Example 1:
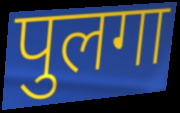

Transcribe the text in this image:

पुलगा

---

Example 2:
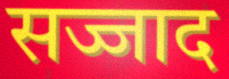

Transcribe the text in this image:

सज्‍जाद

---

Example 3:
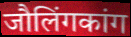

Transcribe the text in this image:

जौलिंगकांग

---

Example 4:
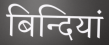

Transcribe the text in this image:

बिन्दियां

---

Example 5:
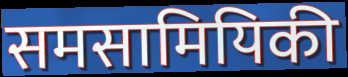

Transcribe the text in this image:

समसामियिकी